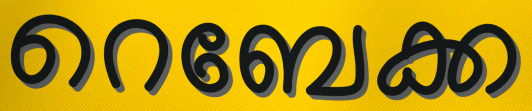
റെബേക്ക